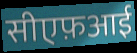
सीएफ़आई